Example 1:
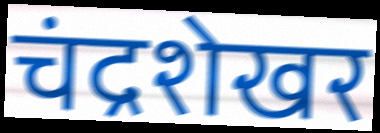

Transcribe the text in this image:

चंद्रशेखर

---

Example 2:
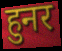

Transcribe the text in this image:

हुनर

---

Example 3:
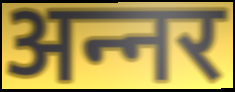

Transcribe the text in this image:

अन्नर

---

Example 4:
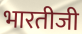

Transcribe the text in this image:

भारतीजी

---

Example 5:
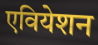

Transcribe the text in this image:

एवियेशन